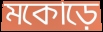
মকোড়ে